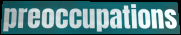
preoccupations